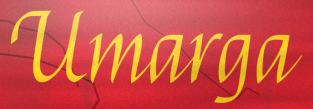
Umarga